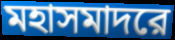
মহাসমাদরে